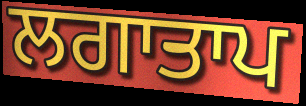
ਲਗਾਤਾਪ